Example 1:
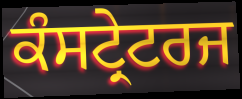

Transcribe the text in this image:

ਕੰਸਟ੍ਰੇਟਰਜ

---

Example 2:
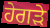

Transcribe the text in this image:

ਹੇਗੜੇ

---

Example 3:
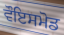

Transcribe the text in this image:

ਵੌਇਸਮੋਡ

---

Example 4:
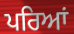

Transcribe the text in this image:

ਪਰਿਆਂ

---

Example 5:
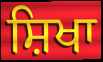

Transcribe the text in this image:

ਸ਼ਿਖਾ